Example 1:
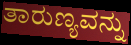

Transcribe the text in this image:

ತಾರುಣ್ಯವನ್ನು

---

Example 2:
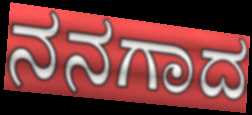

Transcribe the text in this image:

ನನಗಾದ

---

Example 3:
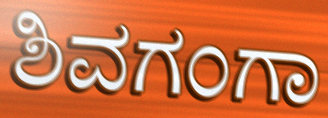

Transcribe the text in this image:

ಶಿವಗಂಗಾ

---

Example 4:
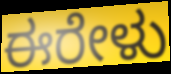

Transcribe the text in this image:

ಈರೇಳು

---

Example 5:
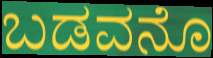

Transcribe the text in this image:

ಬಡವನೊ